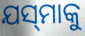
ଯସ୍‌ମାକୁ